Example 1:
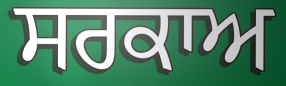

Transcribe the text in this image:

ਸਰਕਾਅ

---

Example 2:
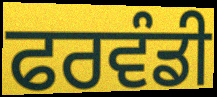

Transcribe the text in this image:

ਫਰਵੰਡੀ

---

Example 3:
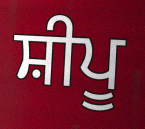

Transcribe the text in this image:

ਸ਼ੀਪੂ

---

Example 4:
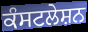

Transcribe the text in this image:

ਕੰਸਟਲੇਸ਼ਨ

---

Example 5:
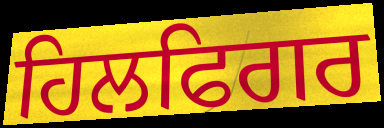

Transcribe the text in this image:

ਹਿਲਫਿਗਰ